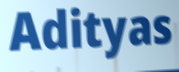
Adityas